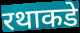
रथाकडे